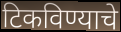
टिकविण्याचे